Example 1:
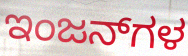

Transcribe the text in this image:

ಇಂಜನ್‌ಗಳ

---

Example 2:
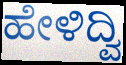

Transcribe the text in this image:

ಹೇಳಿದ್ವಿ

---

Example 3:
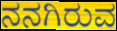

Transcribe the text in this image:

ನನಗಿರುವ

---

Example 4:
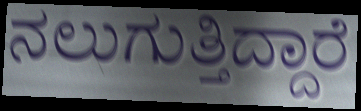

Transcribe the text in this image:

ನಲುಗುತ್ತಿದ್ದಾರೆ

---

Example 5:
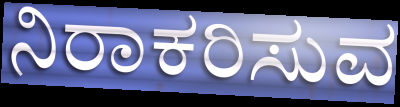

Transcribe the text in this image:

ನಿರಾಕರಿಸುವ